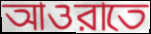
আওরাতে